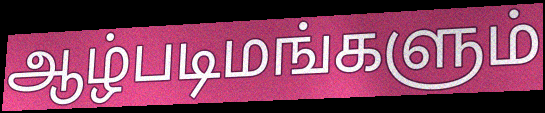
ஆழ்படிமங்களும்